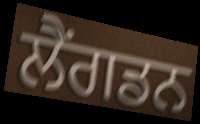
ਲੈਂਗਡਨ